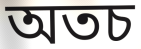
অতচ